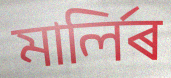
মাৰ্লিৰ